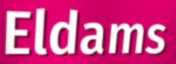
Eldams